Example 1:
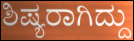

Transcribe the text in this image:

ಶಿಷ್ಯರಾಗಿದ್ದು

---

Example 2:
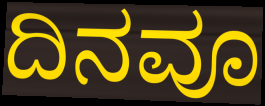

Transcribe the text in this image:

ದಿನವೂ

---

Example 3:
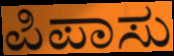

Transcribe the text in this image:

ಪಿಪಾಸು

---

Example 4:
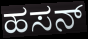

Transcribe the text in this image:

ಹಸನ್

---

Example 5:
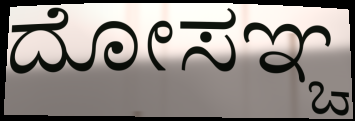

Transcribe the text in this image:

ದೋಸಞ್ಚ